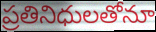
ప్రతినిధులతోనూ